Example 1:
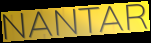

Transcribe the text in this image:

NANTAR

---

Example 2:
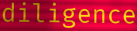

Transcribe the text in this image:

diligence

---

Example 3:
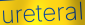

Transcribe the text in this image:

ureteral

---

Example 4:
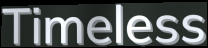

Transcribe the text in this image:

Timeless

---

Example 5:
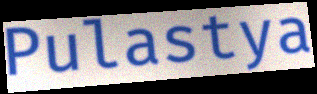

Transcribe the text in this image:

Pulastya